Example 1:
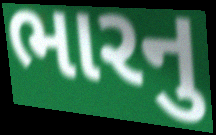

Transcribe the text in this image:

ભારનુ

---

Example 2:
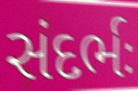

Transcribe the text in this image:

સંદર્ભઃ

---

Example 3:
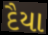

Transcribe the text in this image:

દૈયા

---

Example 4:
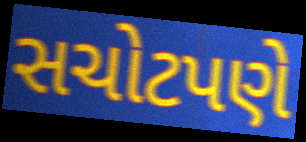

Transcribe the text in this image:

સચોટપણે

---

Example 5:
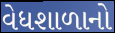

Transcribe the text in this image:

વેધશાળાનો